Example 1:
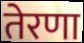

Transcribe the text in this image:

तेरणा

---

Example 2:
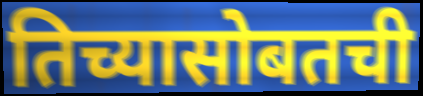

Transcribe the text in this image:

तिच्यासोबतची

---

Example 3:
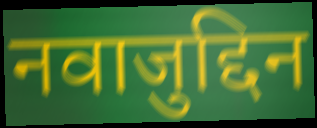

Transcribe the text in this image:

नवाजुद्दिन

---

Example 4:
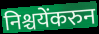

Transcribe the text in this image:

निश्चयेंकरुन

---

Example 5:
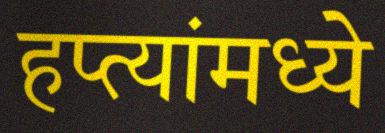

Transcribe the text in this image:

हप्त्यांमध्ये